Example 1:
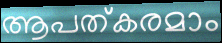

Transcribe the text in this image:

ആപത്കരമാം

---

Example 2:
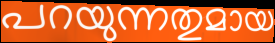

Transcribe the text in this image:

പറയുന്നതുമായ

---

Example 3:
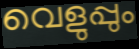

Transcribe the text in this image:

വെളുപ്പും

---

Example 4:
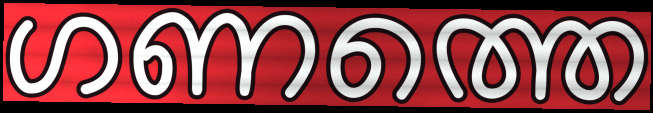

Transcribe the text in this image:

ഗണത്തെ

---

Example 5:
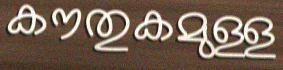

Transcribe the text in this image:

കൗതുകമുള്ള